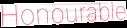
Honourable